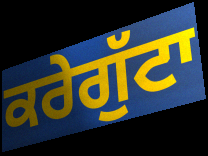
ਕਰੇਗੁੱਟਾ